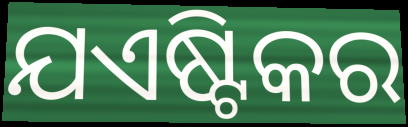
ଯଏଷ୍ଟିକର